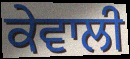
ਕੇਵਾਲੀ